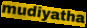
mudiyatha